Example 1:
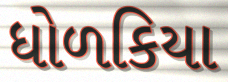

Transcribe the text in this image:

ધોળકિયા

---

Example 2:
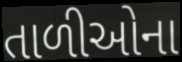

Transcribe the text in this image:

તાળીઓના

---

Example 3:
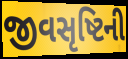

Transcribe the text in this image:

જીવસૃષ્ટિની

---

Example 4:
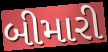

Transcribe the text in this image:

બીમારી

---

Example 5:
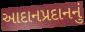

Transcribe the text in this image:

આદાનપ્રદાનનું